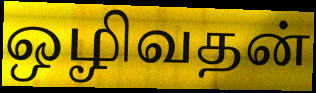
ஒழிவதன்